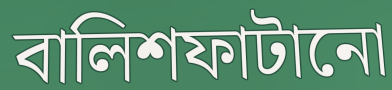
বালিশফাটানো